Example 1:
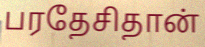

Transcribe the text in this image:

பரதேசிதான்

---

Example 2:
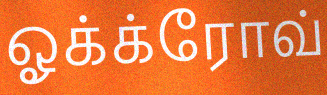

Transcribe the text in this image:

ஓக்க்ரோவ்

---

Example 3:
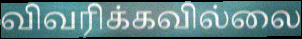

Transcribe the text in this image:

விவரிக்கவில்லை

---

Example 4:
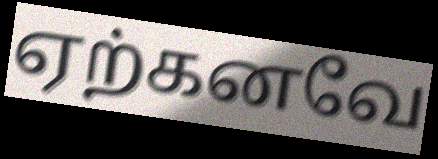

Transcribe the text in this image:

ஏற்கனவே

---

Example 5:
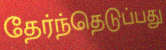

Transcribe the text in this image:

தேர்ந்தெடுப்பது